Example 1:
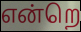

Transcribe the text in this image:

என்றெ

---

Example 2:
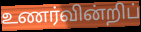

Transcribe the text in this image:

உணர்வின்றிப்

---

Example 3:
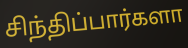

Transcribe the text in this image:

சிந்திப்பார்களா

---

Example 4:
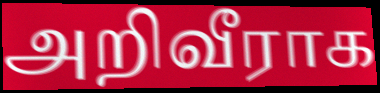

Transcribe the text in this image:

அறிவீராக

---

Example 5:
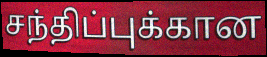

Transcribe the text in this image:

சந்திப்புக்கான